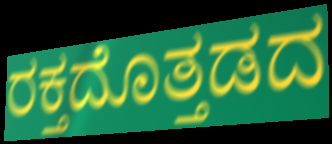
ರಕ್ತದೊತ್ತಡದ